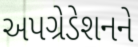
અપગ્રેડેશનને